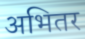
अभितर